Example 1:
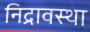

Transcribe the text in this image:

निद्रावस्था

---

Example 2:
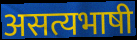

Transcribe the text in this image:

असत्यभाषी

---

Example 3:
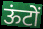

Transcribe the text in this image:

ऊंटों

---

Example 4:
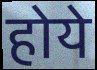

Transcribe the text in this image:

होये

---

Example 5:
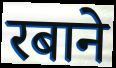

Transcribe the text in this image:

रबाने